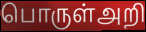
பொருள்அறி